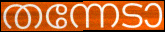
തന്നേടാ